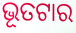
ଭୂତଟାର